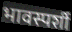
भावस्पर्शी